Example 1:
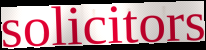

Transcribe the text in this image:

solicitors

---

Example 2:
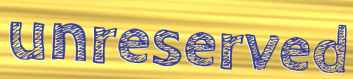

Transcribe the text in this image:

unreserved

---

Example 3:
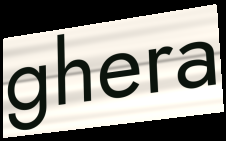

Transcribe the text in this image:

ghera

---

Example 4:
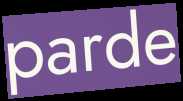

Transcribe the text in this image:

parde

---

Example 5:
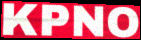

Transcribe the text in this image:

KPNO